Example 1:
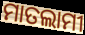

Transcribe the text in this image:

ମାତଲାମୀ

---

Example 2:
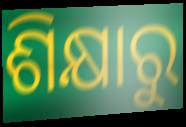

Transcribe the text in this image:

ଶିକ୍ଷାରୁ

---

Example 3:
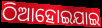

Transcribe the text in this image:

ଠିଆହୋଇଯାଇ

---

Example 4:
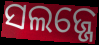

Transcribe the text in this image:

ସଲଜ୍ଜେ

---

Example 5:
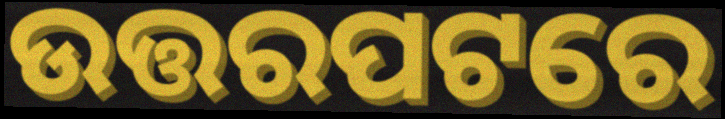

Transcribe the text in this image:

ଉତ୍ତରପଟରେ